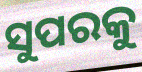
ସୁପରକୁ